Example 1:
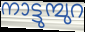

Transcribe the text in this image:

നാട്ടുമ്പുറ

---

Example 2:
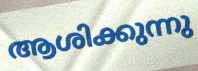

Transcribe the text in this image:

ആശിക്കുന്നു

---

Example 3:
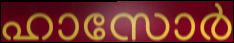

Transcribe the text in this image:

ഹാസോർ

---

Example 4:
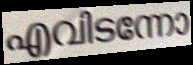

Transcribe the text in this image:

എവിടന്നോ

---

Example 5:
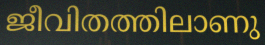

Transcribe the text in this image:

ജീവിതത്തിലാണു